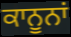
ਕਾਨੂਨਾਂ